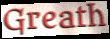
Greath